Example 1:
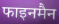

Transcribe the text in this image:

फाइनमैन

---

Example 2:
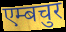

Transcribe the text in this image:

एम्बचुर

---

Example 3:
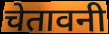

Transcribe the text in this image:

चेतावनी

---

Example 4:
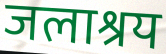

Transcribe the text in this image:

जलाश्रय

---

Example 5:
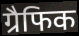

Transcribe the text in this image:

ग्रैफिक